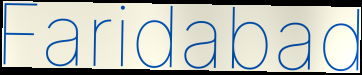
Faridabad